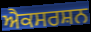
ਐਕਸਰਸ਼ਨ